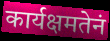
कार्यक्षमतेनं